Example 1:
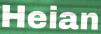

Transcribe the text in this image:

Heian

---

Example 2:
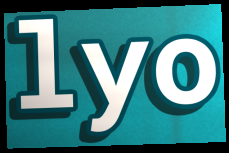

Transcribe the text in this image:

lyo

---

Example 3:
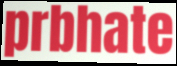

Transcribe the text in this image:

prbhate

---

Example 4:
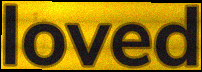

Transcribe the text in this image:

loved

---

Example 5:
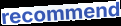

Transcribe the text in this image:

recommend